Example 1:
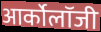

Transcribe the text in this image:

आर्कोलॉजी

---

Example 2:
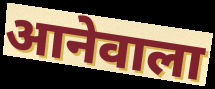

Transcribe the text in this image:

आनेवाला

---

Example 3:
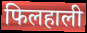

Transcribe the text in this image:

फिलहाली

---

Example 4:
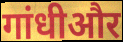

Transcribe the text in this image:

गांधीऔर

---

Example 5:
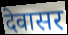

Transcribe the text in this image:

देवासर